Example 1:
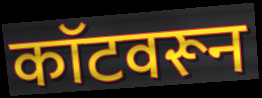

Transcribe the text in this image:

कॉटवरून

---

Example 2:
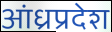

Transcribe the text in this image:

आंध्रप्रदेश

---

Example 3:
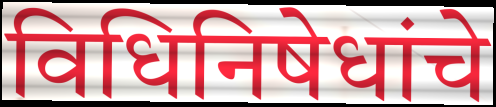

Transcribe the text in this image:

विधिनिषेधांचे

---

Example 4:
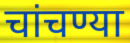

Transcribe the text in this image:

चांचण्या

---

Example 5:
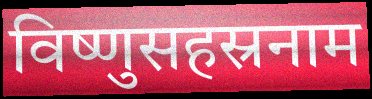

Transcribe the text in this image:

विष्णुसहस्रनाम